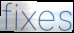
fixes